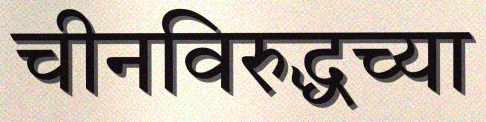
चीनविरुद्धच्या